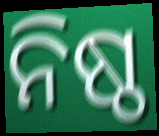
ନିଷ୍ଠ